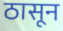
ठासून